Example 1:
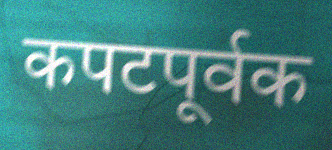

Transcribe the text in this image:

कपटपूर्वक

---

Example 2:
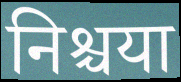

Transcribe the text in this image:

निश्चया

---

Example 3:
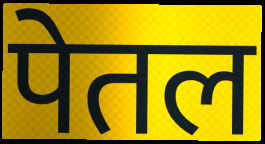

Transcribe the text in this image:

पेतल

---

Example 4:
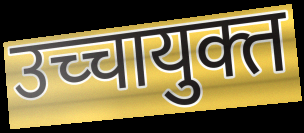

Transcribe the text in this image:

उच्‍चायुक्‍त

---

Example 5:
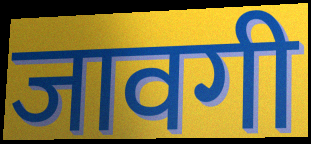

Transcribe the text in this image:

जावगी